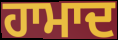
ਹਾਮਾਦ